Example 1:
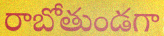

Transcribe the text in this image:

రాబోతుండగా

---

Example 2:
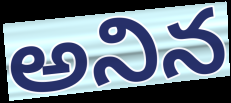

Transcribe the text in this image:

అనిన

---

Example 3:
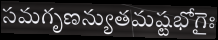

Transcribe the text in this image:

సమగృణన్యుతమష్టభోగైః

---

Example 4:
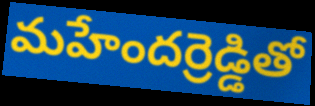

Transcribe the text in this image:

మహేందర్రెడ్డితో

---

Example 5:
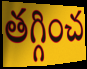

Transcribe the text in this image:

తగ్గించ